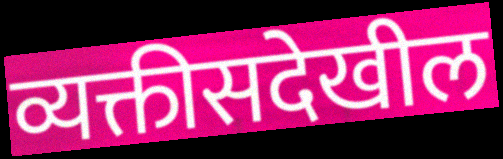
व्यक्तीसदेखील